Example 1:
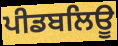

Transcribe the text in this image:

ਪੀਡਬਲਿਊ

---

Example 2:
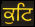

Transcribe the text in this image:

ਕੁਟਿ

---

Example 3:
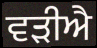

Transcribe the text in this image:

ਵੜੀਐ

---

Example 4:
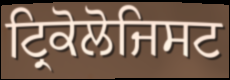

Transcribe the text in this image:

ਟ੍ਰਿਕੋਲੋਜਿਸਟ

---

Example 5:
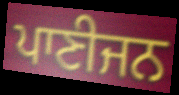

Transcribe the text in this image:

ਪਾਣੀਜਨ